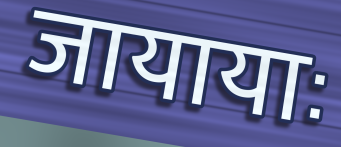
जायायाः